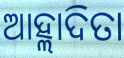
ଆହ୍ଲାଦିତା